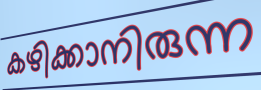
കഴിക്കാനിരുന്ന